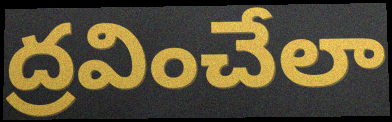
ద్రవించేలా